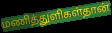
மணித்துளிகள்தான்